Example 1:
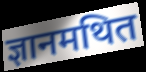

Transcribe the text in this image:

ज्ञानमथित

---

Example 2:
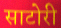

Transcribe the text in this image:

साटोरी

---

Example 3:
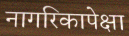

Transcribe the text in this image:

नागरिकापेक्षा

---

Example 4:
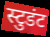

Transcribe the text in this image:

स्टुडंट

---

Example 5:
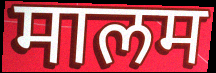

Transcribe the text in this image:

मालम